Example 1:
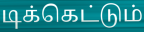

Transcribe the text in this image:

டிக்கெட்டும்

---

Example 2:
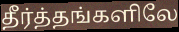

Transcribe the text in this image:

தீர்த்தங்களிலே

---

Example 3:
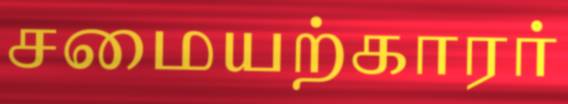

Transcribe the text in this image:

சமையற்காரர்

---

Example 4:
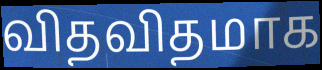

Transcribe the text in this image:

விதவிதமாக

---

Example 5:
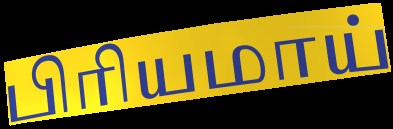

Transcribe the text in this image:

பிரியமாய்